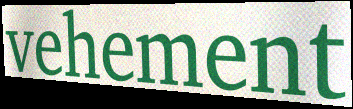
vehement